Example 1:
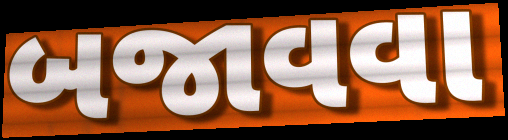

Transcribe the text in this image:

બજાવવા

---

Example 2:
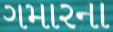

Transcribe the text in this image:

ગમારના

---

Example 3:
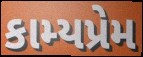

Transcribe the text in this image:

કામ્યપ્રેમ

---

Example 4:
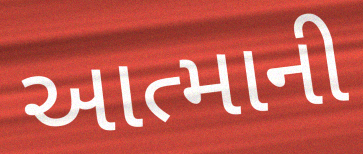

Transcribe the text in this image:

આત્માની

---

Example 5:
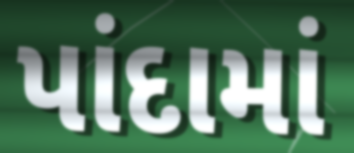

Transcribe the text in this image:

પાંદામાં